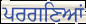
ਪਰਗਣਿਆਂ